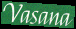
Vasana